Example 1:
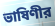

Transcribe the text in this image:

ভাষিণীর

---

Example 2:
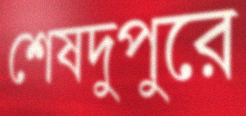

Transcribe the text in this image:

শেষদুপুরে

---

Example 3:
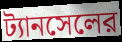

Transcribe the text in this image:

ট্যানসেলের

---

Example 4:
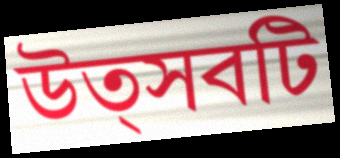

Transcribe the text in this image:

উত্সবটি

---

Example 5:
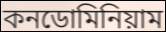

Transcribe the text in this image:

কনডোমিনিয়াম